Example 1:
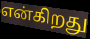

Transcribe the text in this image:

என்கிறது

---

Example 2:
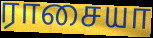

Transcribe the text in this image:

ராசையா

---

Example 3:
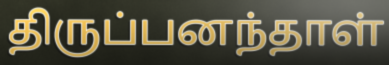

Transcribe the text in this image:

திருப்பனந்தாள்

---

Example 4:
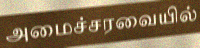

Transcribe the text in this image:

அமைச்சரவையில்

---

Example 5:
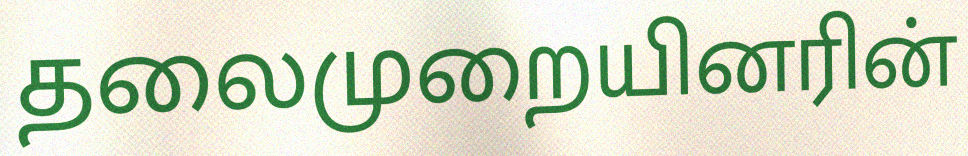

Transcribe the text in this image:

தலைமுறையினரின்